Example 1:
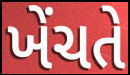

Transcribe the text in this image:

ખેંચતે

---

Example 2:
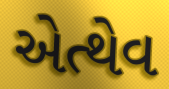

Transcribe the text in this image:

એત્થેવ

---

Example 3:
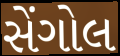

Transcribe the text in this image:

સેંગોલ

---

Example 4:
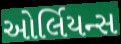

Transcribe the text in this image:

ઓર્લિયન્સ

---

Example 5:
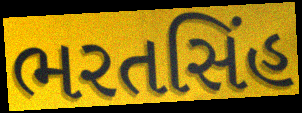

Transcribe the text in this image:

ભરતસિંહ